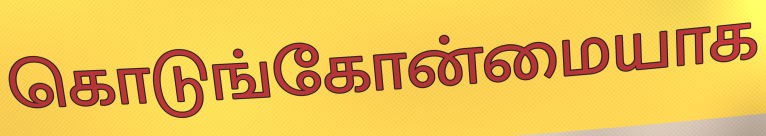
கொடுங்கோன்மையாக